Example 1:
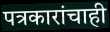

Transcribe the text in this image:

पत्रकारांचाही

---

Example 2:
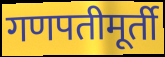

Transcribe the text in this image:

गणपतीमूर्ती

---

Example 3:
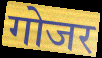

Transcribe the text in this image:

गोजर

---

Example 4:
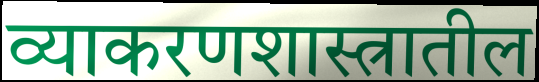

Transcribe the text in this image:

व्याकरणशास्त्रातील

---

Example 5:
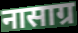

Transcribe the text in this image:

नासाग्र